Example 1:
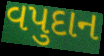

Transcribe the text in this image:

વપુદાન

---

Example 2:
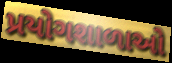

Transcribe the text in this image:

પ્રયોગશાળાઓ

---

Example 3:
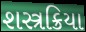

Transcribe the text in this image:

શસ્ત્રક્રિયા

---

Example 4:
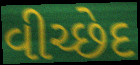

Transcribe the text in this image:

વીચ્છેદ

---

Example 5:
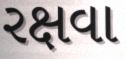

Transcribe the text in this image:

રક્ષવા